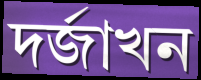
দৰ্জাখন